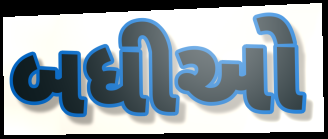
બધીઓ